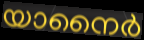
യാനൈർ